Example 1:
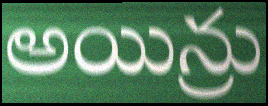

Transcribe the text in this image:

అయిన్రు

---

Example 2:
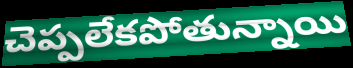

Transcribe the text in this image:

చెప్పలేకపోతున్నాయి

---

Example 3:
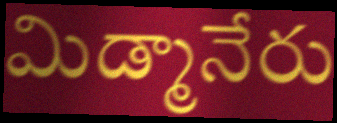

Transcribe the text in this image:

మిడ్మానేరు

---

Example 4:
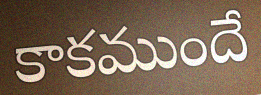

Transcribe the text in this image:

కాకముందే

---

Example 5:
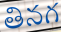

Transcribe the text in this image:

తినగ